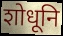
शोधूनि